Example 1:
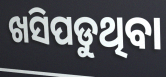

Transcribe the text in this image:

ଖସିପଡୁଥିବା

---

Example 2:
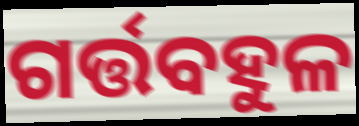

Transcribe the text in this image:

ଗର୍ତ୍ତବହୁଳ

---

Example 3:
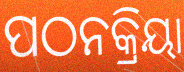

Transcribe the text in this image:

ପଠନକ୍ରିୟା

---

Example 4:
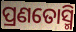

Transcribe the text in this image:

ପ୍ରଣତୋସ୍ମି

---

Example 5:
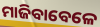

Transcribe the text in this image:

ମାଜିବାବେଳେ